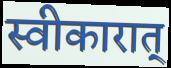
स्वीकारात्